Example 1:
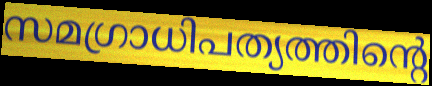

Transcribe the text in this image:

സമഗ്രാധിപത്യത്തിന്റെ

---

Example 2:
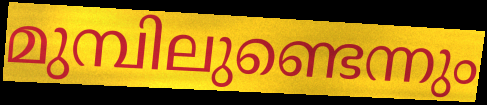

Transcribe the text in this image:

മുമ്പിലുണ്ടെന്നും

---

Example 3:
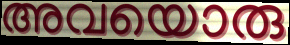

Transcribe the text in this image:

അവയൊരു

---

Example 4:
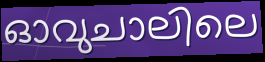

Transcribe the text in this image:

ഓവുചാലിലെ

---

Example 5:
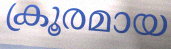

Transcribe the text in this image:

ക്രൂരമായ